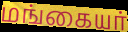
மங்கையர்